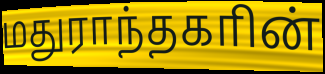
மதுராந்தகரின்